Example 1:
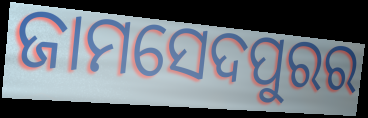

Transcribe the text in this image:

ଜାମସେଦପୁରର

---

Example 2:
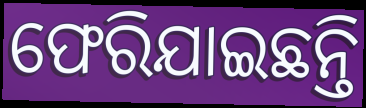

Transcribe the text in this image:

ଫେରିଯାଇଛନ୍ତି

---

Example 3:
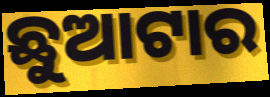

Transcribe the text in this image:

ଛୁଆଟାର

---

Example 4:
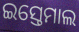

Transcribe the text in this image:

ଇସ୍ତେମାଲ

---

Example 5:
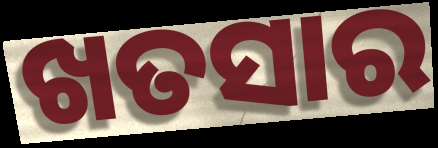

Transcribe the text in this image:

ଖତସାର